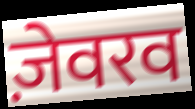
ज़ेवरव